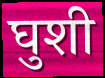
घुशी